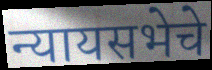
न्यायसभेचे